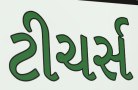
ટીચર્સ